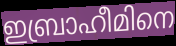
ഇബ്രാഹീമിനെ